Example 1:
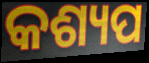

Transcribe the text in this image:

କଶ୍ୟପ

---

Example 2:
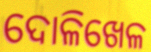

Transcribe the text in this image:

ଦୋଳିଖେଳ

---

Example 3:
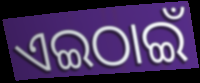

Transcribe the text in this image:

ଏଇଠାଇଁ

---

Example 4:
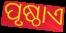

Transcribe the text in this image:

ପୃଷ୍ଠାଏ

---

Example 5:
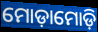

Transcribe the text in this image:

ମୋଡ଼ାମୋଡ଼ି